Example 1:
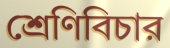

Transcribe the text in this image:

শ্রেণিবিচার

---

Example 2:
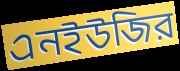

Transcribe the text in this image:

এনইউজির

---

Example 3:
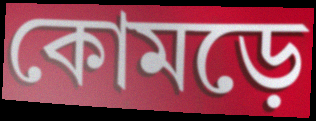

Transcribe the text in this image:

কোমড়ে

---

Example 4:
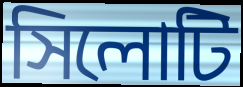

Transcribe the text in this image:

সিলোটি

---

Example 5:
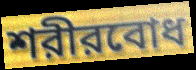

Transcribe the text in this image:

শরীরবোধ